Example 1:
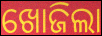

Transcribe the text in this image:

ଖୋଜିଲା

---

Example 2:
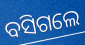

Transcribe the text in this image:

ବସିଗଲେ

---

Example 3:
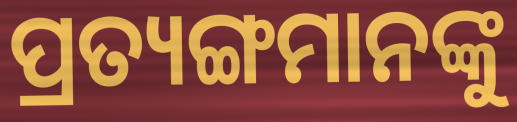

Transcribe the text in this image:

ପ୍ରତ୍ୟଙ୍ଗମାନଙ୍କୁ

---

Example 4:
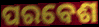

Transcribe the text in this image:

ପରବେଶ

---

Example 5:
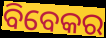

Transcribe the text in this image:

ବିବେକର